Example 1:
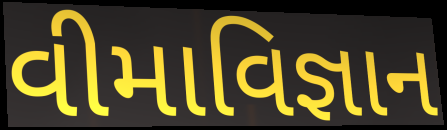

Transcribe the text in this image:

વીમાવિજ્ઞાન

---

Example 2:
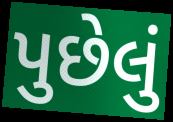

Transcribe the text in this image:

પુછેલું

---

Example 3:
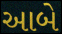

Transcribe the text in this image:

આબે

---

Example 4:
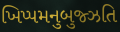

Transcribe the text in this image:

ખિપ્પમનુબુજ્ઝતિ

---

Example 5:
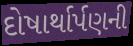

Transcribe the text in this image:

દોષાર્થાર્પણની